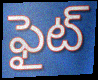
ఫైట్